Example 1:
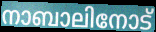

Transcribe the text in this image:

നാബാലിനോട്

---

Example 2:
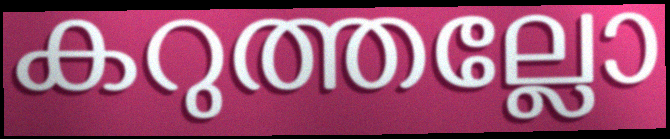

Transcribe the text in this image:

കറുത്തല്ലോ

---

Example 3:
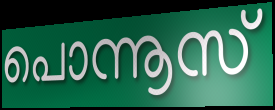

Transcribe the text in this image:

പൊന്നൂസ്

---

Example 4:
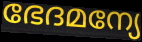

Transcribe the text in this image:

ഭേദമന്യേ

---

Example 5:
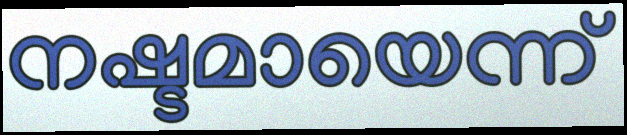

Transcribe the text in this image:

നഷ്ടമായെന്ന്